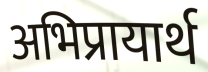
अभिप्रायार्थ